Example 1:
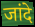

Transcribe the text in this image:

जांदे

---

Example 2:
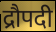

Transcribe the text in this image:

द्रौपदी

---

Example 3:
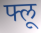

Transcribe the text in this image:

फ्लू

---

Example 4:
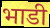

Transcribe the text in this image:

भाडी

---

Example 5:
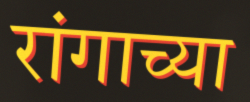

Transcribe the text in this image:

रांगाच्या